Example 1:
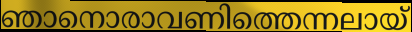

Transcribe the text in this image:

ഞാനൊരാവണിത്തെന്നലായ്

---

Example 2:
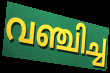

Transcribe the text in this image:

വഞ്ചിച്ച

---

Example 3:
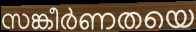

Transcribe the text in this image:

സങ്കീർണതയെ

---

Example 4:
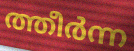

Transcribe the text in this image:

ത്തീർന്ന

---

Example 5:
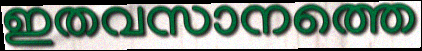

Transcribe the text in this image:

ഇതവസാനത്തെ